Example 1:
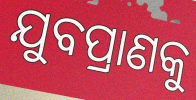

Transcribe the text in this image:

ଯୁବପ୍ରାଣକୁ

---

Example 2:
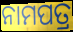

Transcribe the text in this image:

ନାମପତ୍ର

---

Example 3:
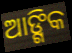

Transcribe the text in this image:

ଆଙ୍ଗିକ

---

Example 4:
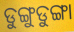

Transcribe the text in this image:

ଡୁଙ୍ଗୁଡୁଙ୍ଗା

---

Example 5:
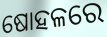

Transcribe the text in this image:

ଷୋହଳରେ